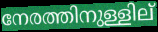
നേരത്തിനുള്ളില്